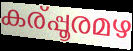
കര്പ്പൂരമഴ